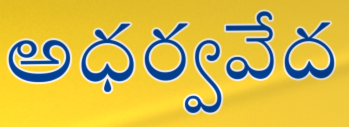
అధర్వవేద